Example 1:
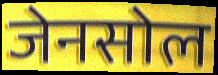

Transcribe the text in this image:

जेनसोल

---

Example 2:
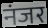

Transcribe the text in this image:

नंजर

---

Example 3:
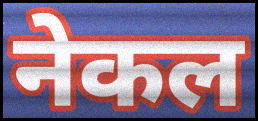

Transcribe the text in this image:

नेकल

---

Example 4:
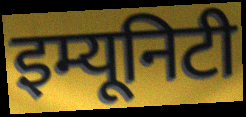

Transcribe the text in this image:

इम्‍यूनिटी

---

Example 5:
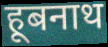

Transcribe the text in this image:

हूबनाथ